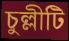
চুল্লীটি